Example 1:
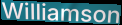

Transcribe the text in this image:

Williamson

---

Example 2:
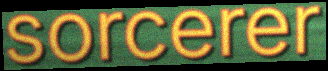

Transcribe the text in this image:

sorcerer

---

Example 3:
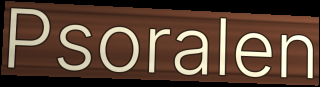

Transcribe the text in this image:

Psoralen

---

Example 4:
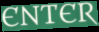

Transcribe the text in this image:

ENTER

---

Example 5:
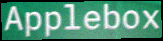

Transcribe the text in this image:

Applebox